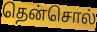
தென்சொல்